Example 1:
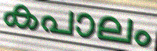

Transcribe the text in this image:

കപാലം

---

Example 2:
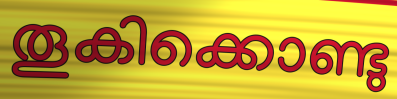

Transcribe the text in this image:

തൂകിക്കൊണ്ടു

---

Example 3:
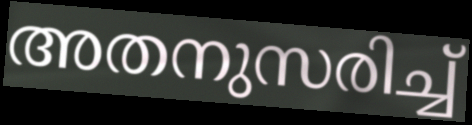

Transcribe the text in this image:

അതനുസരിച്ച്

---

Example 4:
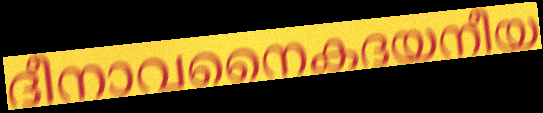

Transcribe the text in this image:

ദീനാവനൈകദയനീയ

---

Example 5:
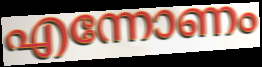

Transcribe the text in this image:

എന്നോണം